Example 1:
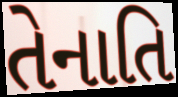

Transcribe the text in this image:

તેનાતિ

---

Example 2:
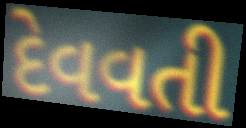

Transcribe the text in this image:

દેવવતી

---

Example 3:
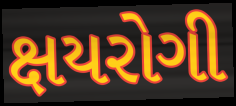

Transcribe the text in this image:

ક્ષયરોગી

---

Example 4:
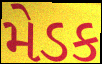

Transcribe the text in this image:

મેડક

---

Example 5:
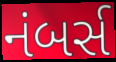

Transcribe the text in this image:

નંબર્સ